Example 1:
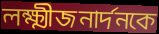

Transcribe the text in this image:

লক্ষ্মীজনার্দনকে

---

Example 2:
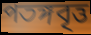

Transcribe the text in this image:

পতঙ্গবৃত্ত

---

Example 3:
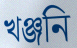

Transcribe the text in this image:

খঞ্জনি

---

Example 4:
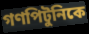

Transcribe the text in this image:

গণপিটুনিকে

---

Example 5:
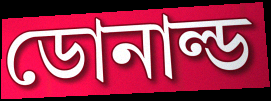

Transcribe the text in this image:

ডোনাল্ড